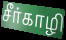
சீர்காழி